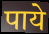
पाये